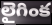
లైగింక